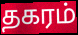
தகரம்